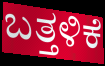
ಬತ್ತಳಿಕೆ